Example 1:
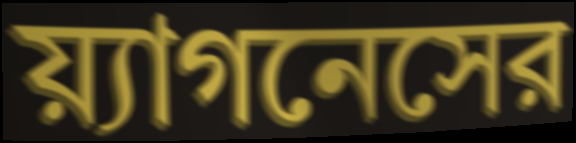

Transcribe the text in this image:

য়্যাগনেসের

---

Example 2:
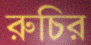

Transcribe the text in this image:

রুচির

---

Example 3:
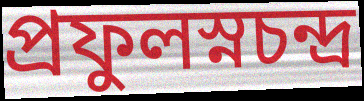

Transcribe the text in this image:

প্রফুলস্নচন্দ্র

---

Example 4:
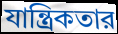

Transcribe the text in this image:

যান্ত্রিকতার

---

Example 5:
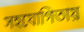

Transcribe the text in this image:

সহযোগিতায়